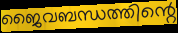
ജൈവബന്ധത്തിന്റെ